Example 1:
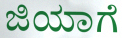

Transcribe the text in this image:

ಜಿಯಾಗೆ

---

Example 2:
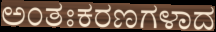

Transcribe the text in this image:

ಅಂತಃಕರಣಗಳಾದ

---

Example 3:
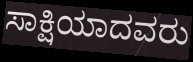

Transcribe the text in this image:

ಸಾಕ್ಷಿಯಾದವರು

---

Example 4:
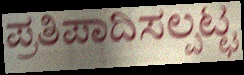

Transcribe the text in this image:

ಪ್ರತಿಪಾದಿಸಲ್ಪಟ್ಟ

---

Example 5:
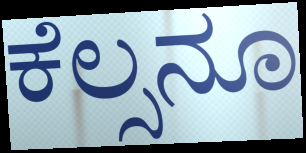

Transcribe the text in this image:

ಕೆಲ್ಸನೂ